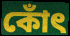
কোঁৎ